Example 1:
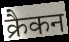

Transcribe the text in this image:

क्रैकन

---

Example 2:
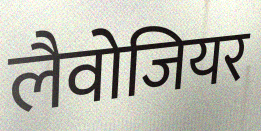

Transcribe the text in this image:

लैवोजियर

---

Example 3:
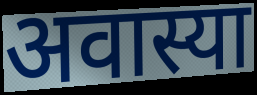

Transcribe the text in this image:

अवास्या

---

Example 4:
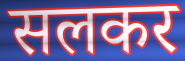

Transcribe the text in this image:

सलकर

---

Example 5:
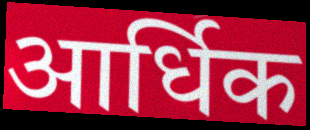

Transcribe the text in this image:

आर्धिक